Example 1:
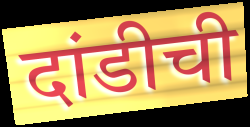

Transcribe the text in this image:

दांडीची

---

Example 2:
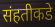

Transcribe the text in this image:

संहतीकडे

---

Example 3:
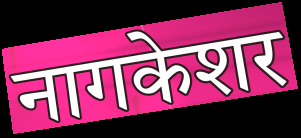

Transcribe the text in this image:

नागकेशर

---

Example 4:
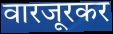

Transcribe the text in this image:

वारजूरकर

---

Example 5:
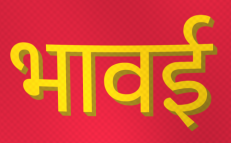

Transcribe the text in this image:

भावई